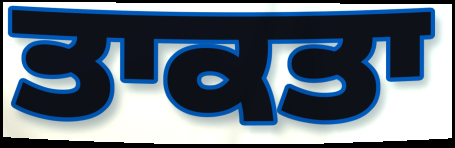
ਤਾਕਤਾ